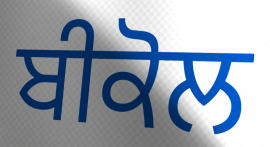
ਬੀਕੋਲ